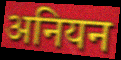
अनियन